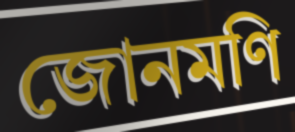
জোনমণি